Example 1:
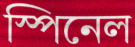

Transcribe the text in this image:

স্পিনেল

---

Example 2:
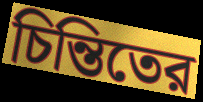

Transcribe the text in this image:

চিন্তিতের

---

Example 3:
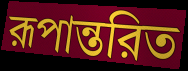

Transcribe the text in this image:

রূপান্তরিত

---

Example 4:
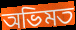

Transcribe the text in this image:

অভিমত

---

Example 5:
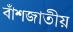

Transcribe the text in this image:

বাঁশজাতীয়